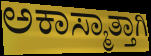
ಅಕಾಸ್ಮಾತ್ತಾಗಿ